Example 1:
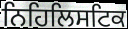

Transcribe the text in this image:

ਨਿਹਿਲਿਸਟਿਕ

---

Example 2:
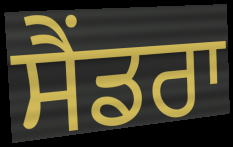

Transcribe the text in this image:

ਸੈਂਡਰਾ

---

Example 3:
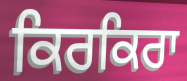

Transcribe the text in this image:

ਕਿਰਕਿਰਾ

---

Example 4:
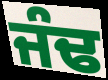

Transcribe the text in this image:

ਜੰਢ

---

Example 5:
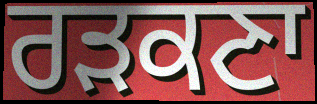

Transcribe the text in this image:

ਰੜਕਣਾ